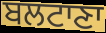
ਬਲਟਾਣਾ